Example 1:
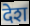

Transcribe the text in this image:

देश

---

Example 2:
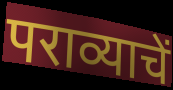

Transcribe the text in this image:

पराव्याचें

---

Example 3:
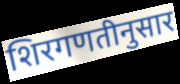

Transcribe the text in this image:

शिरगणतीनुसार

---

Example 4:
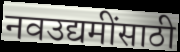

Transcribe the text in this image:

नवउद्यमींसाठी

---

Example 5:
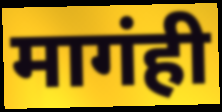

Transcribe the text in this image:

मागंही